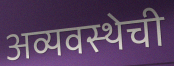
अव्यवस्थेची